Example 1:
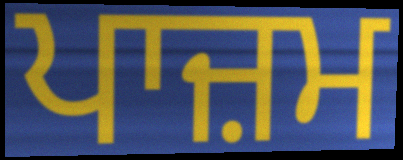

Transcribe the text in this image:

ਪਾਜ਼ਮ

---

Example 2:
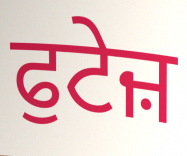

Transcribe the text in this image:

ਫੁਟੇਜ਼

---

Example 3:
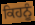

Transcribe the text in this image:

ਕਿਹਨੂੰ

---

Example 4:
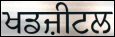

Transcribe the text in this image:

ਖਡਜ਼ੀਟਲ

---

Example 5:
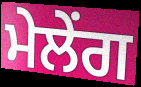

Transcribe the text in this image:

ਮੇਲੇਂਗ